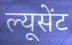
ल्यूसेंट